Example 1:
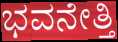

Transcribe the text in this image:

ಭವನೇತ್ತಿ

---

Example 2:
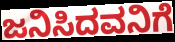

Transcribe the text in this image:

ಜನಿಸಿದವನಿಗೆ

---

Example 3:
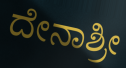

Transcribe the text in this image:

ದೇನಾಶ್ರೀ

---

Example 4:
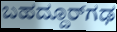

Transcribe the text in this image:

ಬಹದ್ದೂರ್‌ಗಢ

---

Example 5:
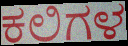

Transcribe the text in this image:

ಕಲಿಗಳ